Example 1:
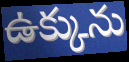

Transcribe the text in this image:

ఉక్కును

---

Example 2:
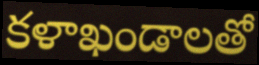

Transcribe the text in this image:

కళాఖండాలతో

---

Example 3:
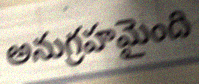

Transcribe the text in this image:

అనుగ్రహమైంది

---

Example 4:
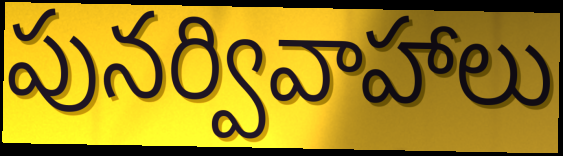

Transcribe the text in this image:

పునర్వివాహాలు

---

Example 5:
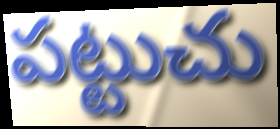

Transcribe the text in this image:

పట్టుచు